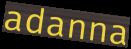
adanna